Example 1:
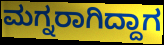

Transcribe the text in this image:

ಮಗ್ನರಾಗಿದ್ದಾಗ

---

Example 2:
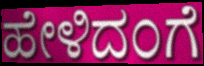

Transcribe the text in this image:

ಹೇಳಿದಂಗೆ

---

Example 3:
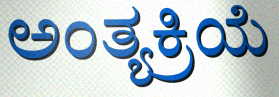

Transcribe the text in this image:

ಅಂತ್ಯಕ್ರಿಯೆ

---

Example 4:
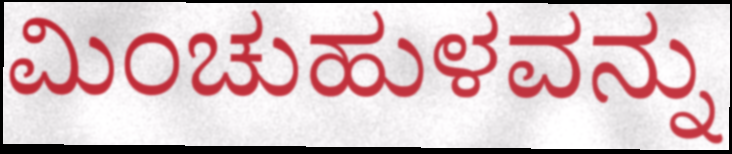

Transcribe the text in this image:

ಮಿಂಚುಹುಳವನ್ನು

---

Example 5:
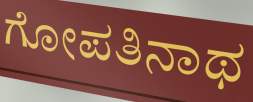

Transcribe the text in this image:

ಗೋಪತಿನಾಥ